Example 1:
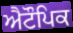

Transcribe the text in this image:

ਐਟੌਪਿਕ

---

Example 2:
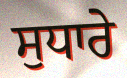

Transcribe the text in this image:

ਸੁਧਾਰੇ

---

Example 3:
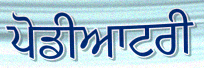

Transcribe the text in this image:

ਪੋਡੀਆਟਰੀ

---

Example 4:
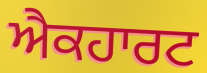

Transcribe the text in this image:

ਐਕਹਾਰਟ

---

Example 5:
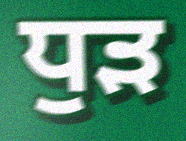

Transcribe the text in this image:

ਧੁੜ